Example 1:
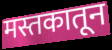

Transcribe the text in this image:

मस्तकातून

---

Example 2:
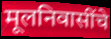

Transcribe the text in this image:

मूलनिवासींचे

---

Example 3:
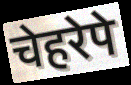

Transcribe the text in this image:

चेहरेपे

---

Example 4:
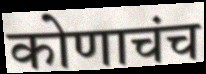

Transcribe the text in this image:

कोणाचंच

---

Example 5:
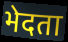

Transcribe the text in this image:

भेदता